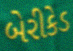
બેરીકેડ